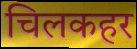
चिलकहर